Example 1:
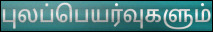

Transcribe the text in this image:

புலப்பெயர்வுகளும்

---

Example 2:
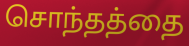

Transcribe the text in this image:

சொந்தத்தை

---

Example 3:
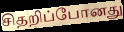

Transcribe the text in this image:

சிதறிப்போனது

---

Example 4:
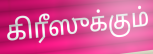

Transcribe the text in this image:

கிரீஸுக்கும்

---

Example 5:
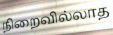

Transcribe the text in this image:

நிறைவில்லாத